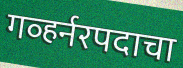
गव्हर्नरपदाचा